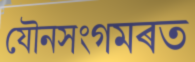
যৌনসংগমৰত